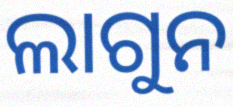
ଲାଗୁନ